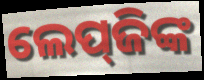
ଲେପ୍‌ଜିଙ୍କ